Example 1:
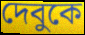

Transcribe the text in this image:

দেবুকে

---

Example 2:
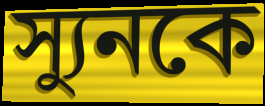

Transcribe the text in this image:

স্যুনকে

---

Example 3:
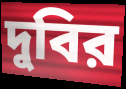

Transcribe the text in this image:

দুবির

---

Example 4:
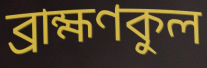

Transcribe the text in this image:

ব্রাহ্মণকুল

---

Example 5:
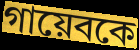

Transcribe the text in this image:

গায়েবকে